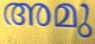
അമു